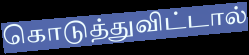
கொடுத்துவிட்டால்